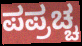
ಪಪ್ರಚ್ಚ